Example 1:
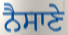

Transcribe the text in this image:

ਨੈਸਾਣੇ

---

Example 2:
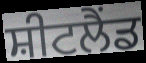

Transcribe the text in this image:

ਸ਼ੀਟਲੈਂਡ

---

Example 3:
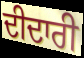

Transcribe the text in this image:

ਦੀਦਾਰੀ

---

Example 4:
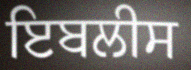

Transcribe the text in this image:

ਇਬਲੀਸ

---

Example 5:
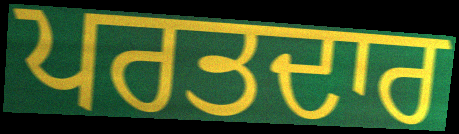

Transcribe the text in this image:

ਪਰਤਦਾਰ